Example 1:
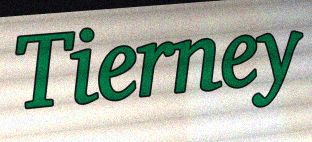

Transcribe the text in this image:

Tierney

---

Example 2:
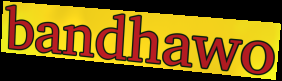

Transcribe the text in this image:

bandhawo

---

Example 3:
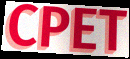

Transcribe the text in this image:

CPET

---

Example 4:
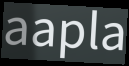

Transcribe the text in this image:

aapla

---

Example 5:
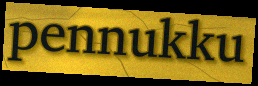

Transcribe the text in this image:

pennukku